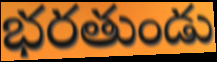
భరతుండు